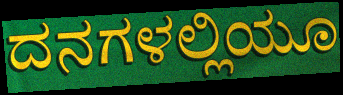
ದನಗಳಲ್ಲಿಯೂ